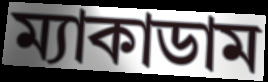
ম্যাকাডাম